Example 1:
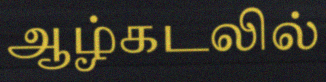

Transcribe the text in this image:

ஆழ்கடலில்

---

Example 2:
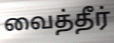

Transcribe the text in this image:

வைத்தீர்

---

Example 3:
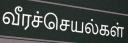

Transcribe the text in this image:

வீரச்செயல்கள்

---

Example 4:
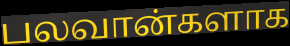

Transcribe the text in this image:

பலவான்களாக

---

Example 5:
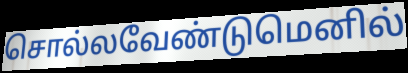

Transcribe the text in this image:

சொல்லவேண்டுமெனில்